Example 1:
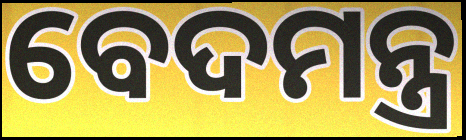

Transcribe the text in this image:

ବେଦମନ୍ତ୍ର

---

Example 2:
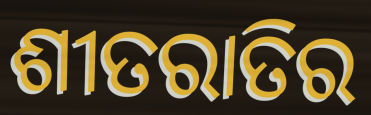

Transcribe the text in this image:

ଶୀତରାତିର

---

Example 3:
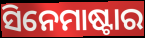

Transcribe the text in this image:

ସିନେମାଷ୍ଟାର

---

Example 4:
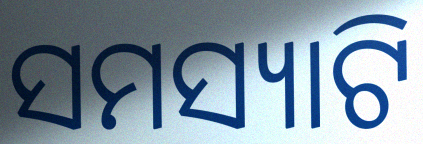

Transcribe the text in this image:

ସମସ୍ୟାଟି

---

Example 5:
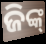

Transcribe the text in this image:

ଜିଙ୍କ୍